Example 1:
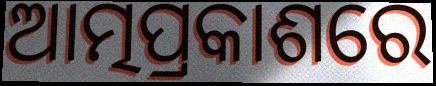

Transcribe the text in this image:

ଆତ୍ମପ୍ରକାଶରେ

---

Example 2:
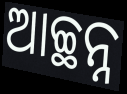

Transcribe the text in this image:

ଆଚ୍ଛନ୍ନ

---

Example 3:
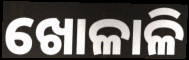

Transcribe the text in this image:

ଖୋଳାଳି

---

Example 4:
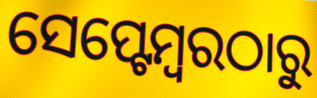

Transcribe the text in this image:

ସେପ୍ଟେମ୍ବରଠାରୁ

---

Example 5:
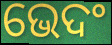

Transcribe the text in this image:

ଭେଦଂ